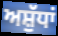
ਅਸ਼ੁੱਧਾਂ